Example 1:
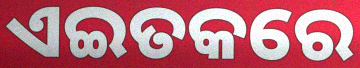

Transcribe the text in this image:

ଏଇତକରେ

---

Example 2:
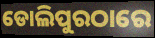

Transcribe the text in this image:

ଡୋଲିପୁରଠାରେ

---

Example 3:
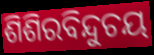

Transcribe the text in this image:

ଶିଶିରବିନ୍ଦୁଚୟ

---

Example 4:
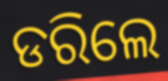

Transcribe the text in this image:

ଡରିଲେ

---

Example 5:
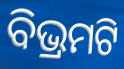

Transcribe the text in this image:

ବିଭ୍ରମଟି